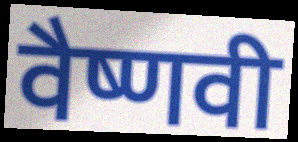
वैष्णवी